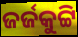
ଜର୍ଜକୁଟ୍ଟି